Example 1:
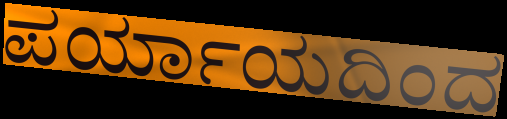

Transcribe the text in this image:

ಪರ್ಯಾಯದಿಂದ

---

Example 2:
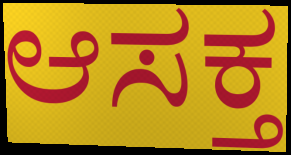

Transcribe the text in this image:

ಆಸಕ್ತ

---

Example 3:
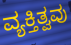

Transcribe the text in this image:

ವ್ಯಕ್ತಿತ್ವವು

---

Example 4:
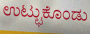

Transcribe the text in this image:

ಉಟ್ಟುಕೊಂಡು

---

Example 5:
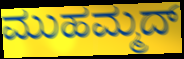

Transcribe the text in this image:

ಮುಹಮ್ಮದ್